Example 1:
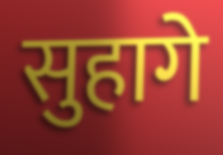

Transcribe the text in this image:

सुहागे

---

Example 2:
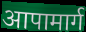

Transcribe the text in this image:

आपामार्ग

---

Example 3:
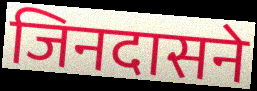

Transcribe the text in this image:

जिनदासने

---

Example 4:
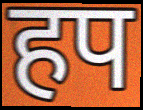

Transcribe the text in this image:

हप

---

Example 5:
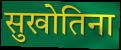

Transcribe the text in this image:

सुखोतिना